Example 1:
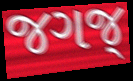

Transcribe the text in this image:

જગજ્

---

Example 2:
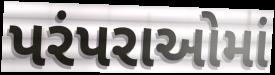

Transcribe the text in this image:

પરંપરાઓમાં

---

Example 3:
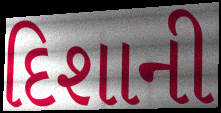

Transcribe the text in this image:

દિશાની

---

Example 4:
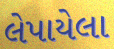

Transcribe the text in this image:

લેપાયેલા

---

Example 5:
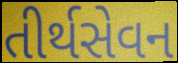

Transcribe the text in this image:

તીર્થસેવન